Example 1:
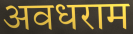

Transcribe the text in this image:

अवधराम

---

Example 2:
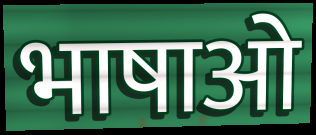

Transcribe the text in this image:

भाषाओ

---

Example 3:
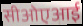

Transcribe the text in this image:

सीओएआई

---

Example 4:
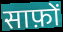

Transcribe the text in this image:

साफ़ों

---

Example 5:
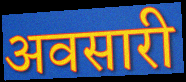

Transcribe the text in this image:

अवसारी